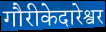
गौरीकेदारेश्वर